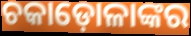
ଚକାଡ଼ୋଳାଙ୍କର